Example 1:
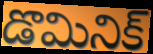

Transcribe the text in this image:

డొమినిక్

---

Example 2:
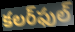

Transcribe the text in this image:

కలర్‌ఫుల్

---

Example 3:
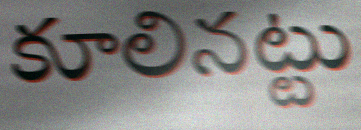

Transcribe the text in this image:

కూలినట్టు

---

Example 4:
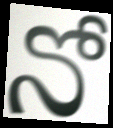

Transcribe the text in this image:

నో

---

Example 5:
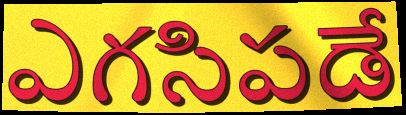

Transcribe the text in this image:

ఎగసిపడే